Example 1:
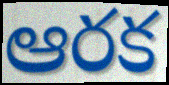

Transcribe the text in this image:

ఆరక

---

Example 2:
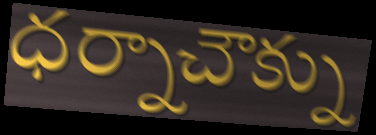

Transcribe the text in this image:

ధర్నాచౌక్ను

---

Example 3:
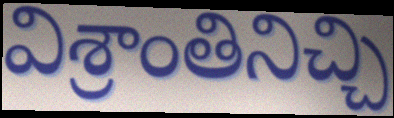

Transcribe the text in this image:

విశ్రాంతినిచ్చి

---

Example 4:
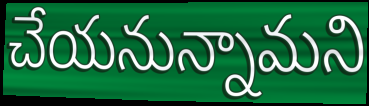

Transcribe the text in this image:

చేయనున్నామని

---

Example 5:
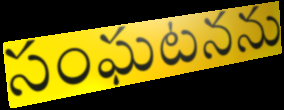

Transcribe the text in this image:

సంఘటనను